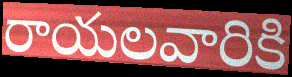
రాయలవారికి